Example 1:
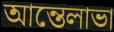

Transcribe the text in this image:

আন্তেলাভা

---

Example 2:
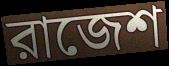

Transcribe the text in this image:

রাজেশ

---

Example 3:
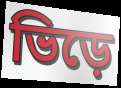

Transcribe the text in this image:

ভিড়ে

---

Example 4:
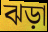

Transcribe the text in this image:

ঝড়া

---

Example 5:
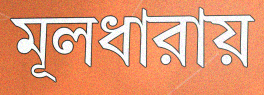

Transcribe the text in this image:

মূলধারায়